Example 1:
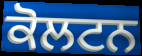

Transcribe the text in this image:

ਕੋਲਟਨ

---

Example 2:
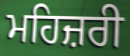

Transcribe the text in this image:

ਮਹਿਜ਼ਰੀ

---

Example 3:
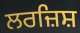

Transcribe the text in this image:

ਲਰਜ਼ਿਸ਼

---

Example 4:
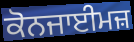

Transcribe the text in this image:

ਕੋਨਜਾਈਮਜ਼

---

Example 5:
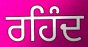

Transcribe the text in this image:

ਰਹਿੰਦ